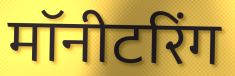
मॉनीटरिंग